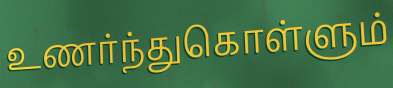
உணர்ந்துகொள்ளும்